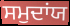
ਸਮੁਦਾਂਯ